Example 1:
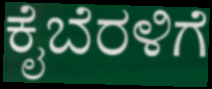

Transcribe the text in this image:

ಕೈಬೆರಳಿಗೆ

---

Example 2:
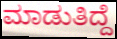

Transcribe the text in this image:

ಮಾಡುತಿದ್ದೆ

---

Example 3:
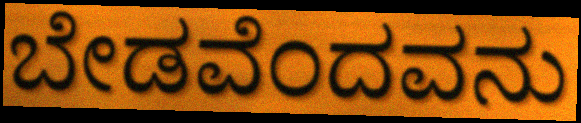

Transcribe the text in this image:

ಬೇಡವೆಂದವನು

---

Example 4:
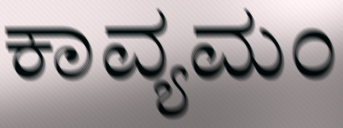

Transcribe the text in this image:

ಕಾವ್ಯಮಂ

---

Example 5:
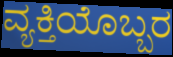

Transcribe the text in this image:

ವ್ಯಕ್ತಿಯೊಬ್ಬರ